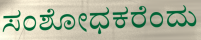
ಸಂಶೋಧಕರೆಂದು